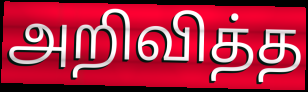
அறிவித்த